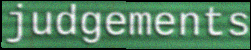
judgements